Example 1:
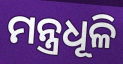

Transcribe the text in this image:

ମନ୍ତ୍ରଧୂଳି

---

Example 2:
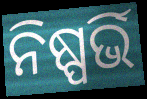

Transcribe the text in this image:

ନିଷ୍ପର୍ଭି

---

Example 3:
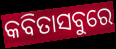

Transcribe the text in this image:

କବିତାସବୁରେ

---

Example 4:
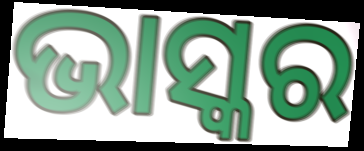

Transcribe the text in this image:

ଭାସ୍କର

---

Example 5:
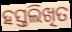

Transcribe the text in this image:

ହସ୍ତଲିଖିତ